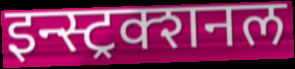
इन्स्ट्रक्शनल